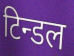
टिन्डल